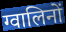
ग्वालिनों